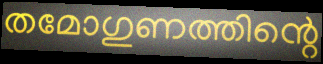
തമോഗുണത്തിന്റെ